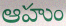
ఆహుం